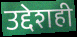
उद्देशही